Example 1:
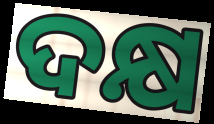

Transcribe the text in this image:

ଦକ୍ଷ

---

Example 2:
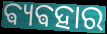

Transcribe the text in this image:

ଵ୍ଯଵହାର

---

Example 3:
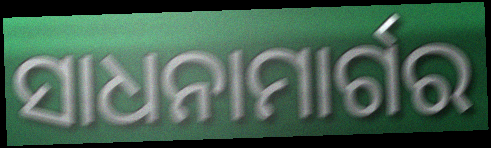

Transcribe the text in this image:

ସାଧନାମାର୍ଗର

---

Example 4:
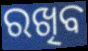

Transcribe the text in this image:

ରଖିବ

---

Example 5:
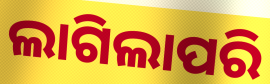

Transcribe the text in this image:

ଲାଗିଲାପରି